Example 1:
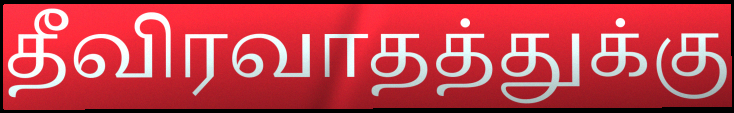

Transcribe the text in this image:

தீவிரவாதத்துக்கு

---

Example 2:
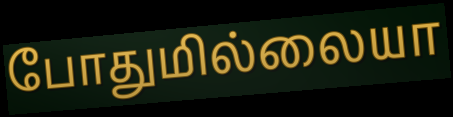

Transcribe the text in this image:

போதுமில்லையா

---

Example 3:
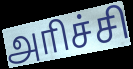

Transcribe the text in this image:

அரிச்சி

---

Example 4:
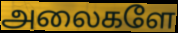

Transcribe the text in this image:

அலைகளே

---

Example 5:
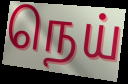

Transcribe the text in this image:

நெய்